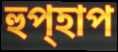
হুপ্হাপ